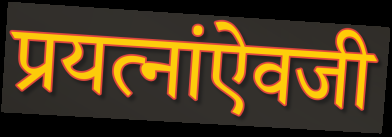
प्रयत्नांऐवजी